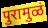
पुरामुळं